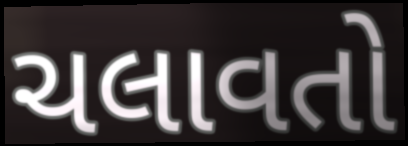
ચલાવતો